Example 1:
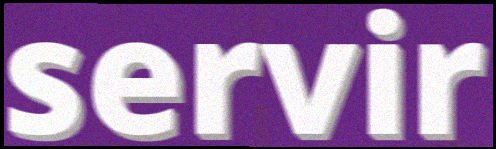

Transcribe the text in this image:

servir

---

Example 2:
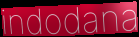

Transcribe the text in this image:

indodana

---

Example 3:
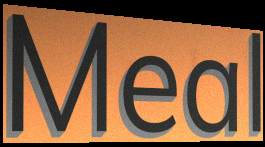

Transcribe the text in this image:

Meal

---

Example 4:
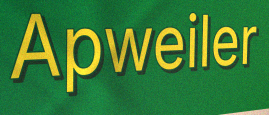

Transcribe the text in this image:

Apweiler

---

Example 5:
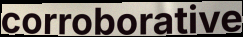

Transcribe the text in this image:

corroborative